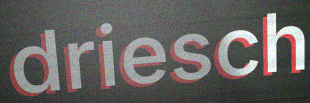
driesch